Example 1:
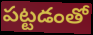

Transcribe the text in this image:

పట్టడంతో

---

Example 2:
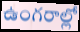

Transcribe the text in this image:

ఉంగరాల్లో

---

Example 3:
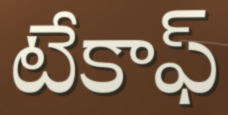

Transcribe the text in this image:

టేకాఫ్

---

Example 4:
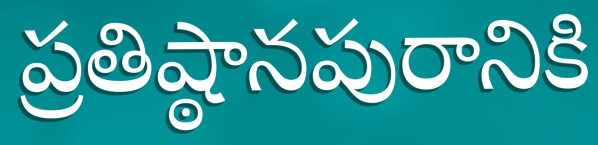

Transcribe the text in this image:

ప్రతిష్ఠానపురానికి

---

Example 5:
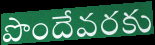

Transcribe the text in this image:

పొందేవరకు